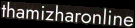
thamizharonline